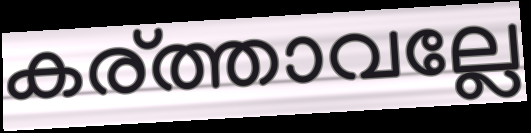
കര്ത്താവല്ലേ